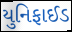
યુનિફાઈડ